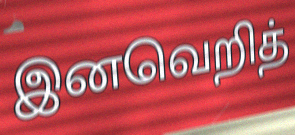
இனவெறித்